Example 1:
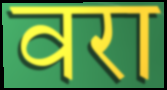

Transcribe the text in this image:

वरा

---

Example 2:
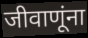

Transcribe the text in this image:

जीवाणूंना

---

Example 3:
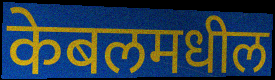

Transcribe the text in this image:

केबलमधील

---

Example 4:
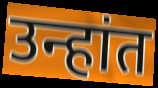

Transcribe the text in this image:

उन्हांत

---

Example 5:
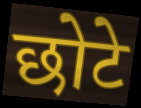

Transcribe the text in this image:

छोटे